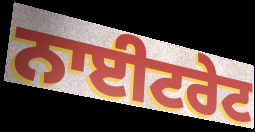
ਨਾਈਟਰੇਟ